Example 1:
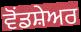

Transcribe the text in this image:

ਵੋਂਡਸ਼ੇਅਰ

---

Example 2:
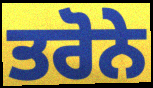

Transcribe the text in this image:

ਤਰੋਨੇ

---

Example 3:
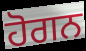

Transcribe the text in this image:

ਹੋਗਨ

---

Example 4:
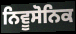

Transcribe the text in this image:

ਨਿਵੂਸੋਨਿਕ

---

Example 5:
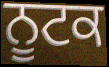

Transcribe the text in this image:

ਨੂਟਕ